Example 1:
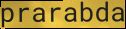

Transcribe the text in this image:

prarabda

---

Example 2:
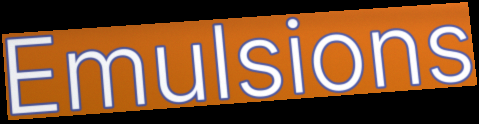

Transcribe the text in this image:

Emulsions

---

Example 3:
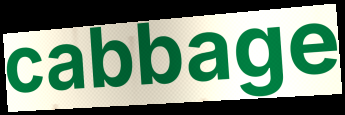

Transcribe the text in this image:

cabbage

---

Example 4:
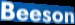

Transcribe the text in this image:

Beeson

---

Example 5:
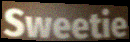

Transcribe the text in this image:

Sweetie